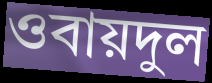
ওবায়দুল